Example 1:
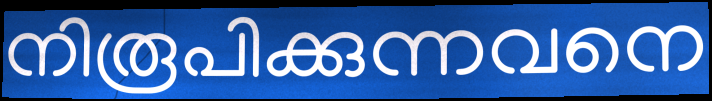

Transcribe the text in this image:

നിരൂപിക്കുന്നവനെ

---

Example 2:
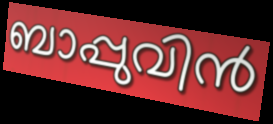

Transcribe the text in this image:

ബാപ്പുവിൻ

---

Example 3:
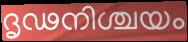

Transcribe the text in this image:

ദൃഢനിശ്ചയം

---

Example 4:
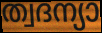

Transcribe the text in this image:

ത്വദന്യാ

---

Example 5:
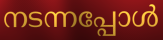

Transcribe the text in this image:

നടന്നപ്പോൾ